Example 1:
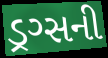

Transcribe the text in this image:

ડ્રગ્સની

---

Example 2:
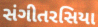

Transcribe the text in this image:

સંગીતરસિયા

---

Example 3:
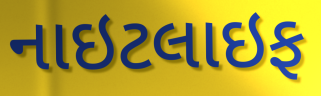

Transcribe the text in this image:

નાઇટલાઇફ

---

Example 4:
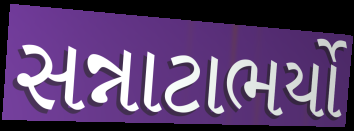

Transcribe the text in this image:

સન્નાટાભર્યો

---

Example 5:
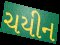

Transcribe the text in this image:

ચયીન